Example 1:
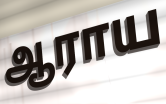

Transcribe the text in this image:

ஆராய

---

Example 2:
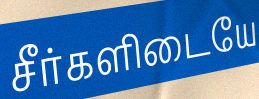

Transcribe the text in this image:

சீர்களிடையே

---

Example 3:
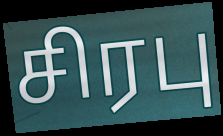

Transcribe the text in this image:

சிரபு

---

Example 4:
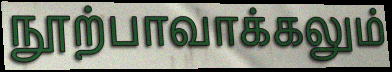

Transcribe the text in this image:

நூற்பாவாக்கலும்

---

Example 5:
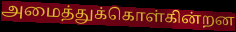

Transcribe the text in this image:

அமைத்துக்கொள்கின்றன